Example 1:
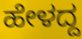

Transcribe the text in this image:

ಹೇಳದ್ದ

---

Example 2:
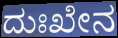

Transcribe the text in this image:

ದುಃಖೇನ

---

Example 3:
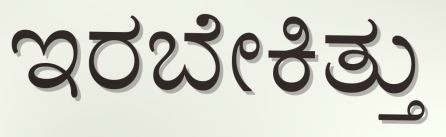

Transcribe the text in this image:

ಇರಬೇಕಿತ್ತು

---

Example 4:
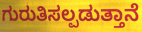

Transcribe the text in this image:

ಗುರುತಿಸಲ್ಪಡುತ್ತಾನೆ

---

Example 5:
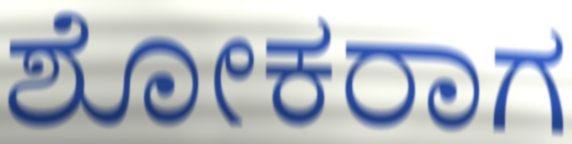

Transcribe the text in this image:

ಶೋಕರಾಗ